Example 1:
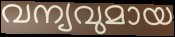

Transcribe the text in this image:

വന്യവുമായ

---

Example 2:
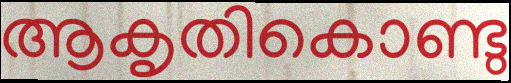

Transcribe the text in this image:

ആകൃതികൊണ്ടു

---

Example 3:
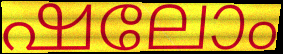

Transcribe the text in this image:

ഷലോം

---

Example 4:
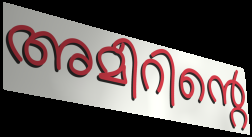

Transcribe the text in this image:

അമീറിന്റെ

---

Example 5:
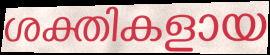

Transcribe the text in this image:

ശക്തികളായ